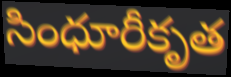
సింధూరీకృత